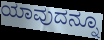
ಯಾವುದನ್ನೂ